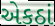
એકઠાં